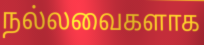
நல்லவைகளாக